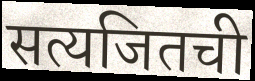
सत्यजितची